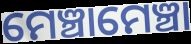
ମେଞ୍ଚାମେଞ୍ଚା